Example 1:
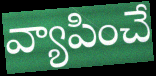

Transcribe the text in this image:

వ్యాపించే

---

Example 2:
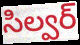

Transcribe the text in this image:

సిల్వర్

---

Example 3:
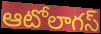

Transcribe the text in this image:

ఆటోలాగస్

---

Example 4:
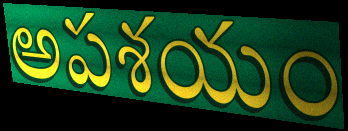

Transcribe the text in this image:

అపశయం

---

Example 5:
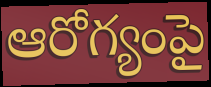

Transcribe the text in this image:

ఆరోగ్యంపై